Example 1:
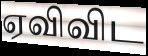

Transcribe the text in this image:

ஏவிவிட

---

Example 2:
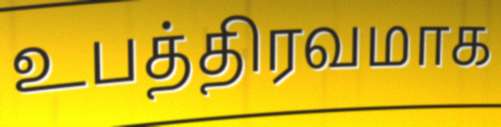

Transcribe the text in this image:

உபத்திரவமாக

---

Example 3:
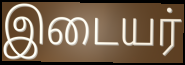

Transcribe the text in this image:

இடையர்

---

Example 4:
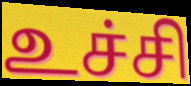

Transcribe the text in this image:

உச்சி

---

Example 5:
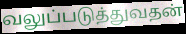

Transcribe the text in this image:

வலுப்படுத்துவதன்